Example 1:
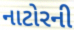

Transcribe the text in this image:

નાટોરની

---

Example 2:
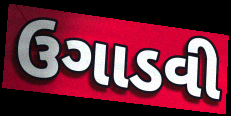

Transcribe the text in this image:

ઉગાડવી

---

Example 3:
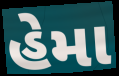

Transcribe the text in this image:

હેમા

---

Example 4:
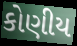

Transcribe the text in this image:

કોણીય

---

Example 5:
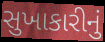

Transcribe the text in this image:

સુખાકારીનું